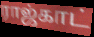
ராஜ்காட்